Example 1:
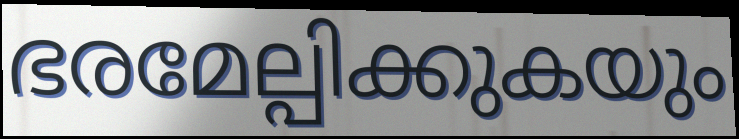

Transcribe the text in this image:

ഭരമേല്പിക്കുകയും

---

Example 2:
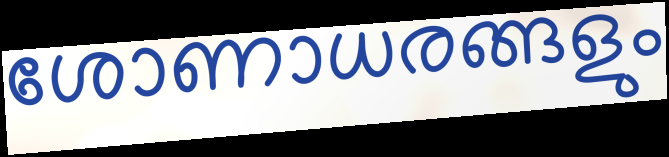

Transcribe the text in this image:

ശോണാധരങ്ങളും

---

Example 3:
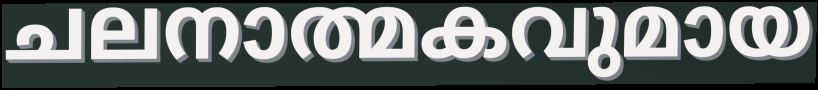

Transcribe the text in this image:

ചലനാത്മകവുമായ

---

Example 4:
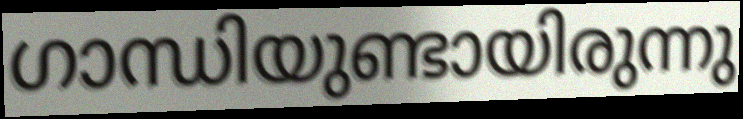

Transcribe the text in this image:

ഗാന്ധിയുണ്ടായിരുന്നു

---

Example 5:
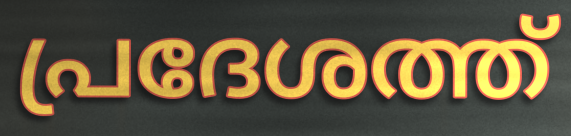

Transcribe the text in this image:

പ്രദേശത്ത്